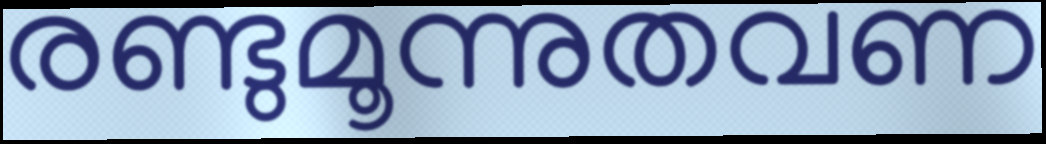
രണ്ടുമൂന്നുതവണ